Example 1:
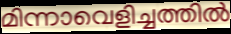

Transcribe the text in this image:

മിന്നാവെളിച്ചത്തിൽ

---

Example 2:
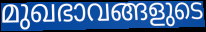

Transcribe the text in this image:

മുഖഭാവങ്ങളുടെ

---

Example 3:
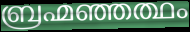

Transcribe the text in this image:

ബ്രഹ്മഞ്ഞത്ഥം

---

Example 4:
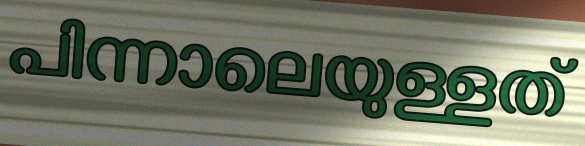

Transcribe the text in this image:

പിന്നാലെയുള്ളത്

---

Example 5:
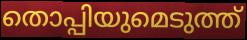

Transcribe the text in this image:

തൊപ്പിയുമെടുത്ത്